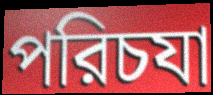
পরিচযা